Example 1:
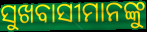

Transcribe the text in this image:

ସୁଖବାସୀମାନଙ୍କୁ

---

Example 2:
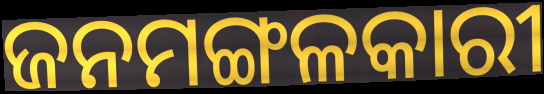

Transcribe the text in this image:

ଜନମଙ୍ଗଳକାରୀ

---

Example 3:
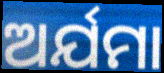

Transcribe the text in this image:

ଅର୍ଯମା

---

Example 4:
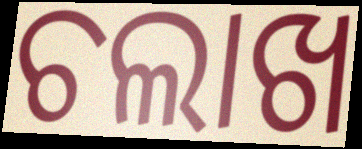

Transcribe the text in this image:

ଚଲାଖ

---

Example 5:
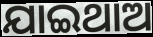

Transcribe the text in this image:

ଯାଇଥାଅ